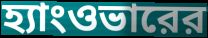
হ্যাংওভারের